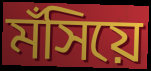
মঁসিয়ে